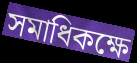
সমাধিকক্ষে